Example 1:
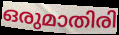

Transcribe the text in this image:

ഒരുമാതിരി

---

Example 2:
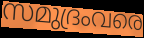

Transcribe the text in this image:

സമുദ്രംവരെ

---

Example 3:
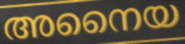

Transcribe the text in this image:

അനൈയ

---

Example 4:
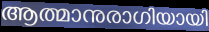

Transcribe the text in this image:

ആത്മാനുരാഗിയായി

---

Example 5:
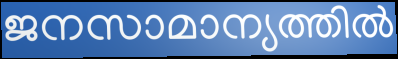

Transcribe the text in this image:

ജനസാമാന്യത്തിൽ